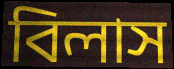
বিলাস